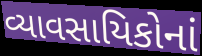
વ્યાવસાયિકોનાં